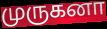
முருகனா